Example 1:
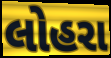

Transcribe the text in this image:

લોહરા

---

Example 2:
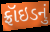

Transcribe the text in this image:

ફ્રૉઇડનું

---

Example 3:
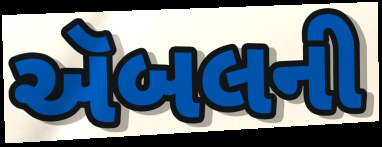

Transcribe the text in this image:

ઍબલની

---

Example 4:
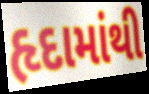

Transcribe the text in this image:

હૃદામાંથી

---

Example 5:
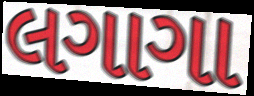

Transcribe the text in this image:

લગાગા